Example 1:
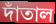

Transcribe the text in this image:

দাঁতাল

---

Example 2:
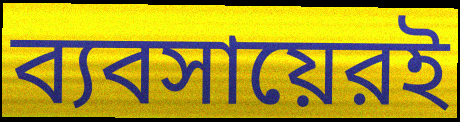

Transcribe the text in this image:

ব্যবসায়েরই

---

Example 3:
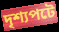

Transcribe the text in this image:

দৃশ্যপটে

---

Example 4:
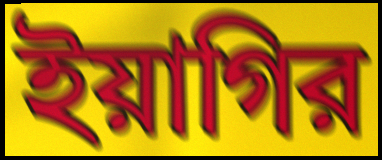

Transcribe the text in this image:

ইয়াগির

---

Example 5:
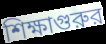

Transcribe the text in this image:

শিক্ষাগুরুর